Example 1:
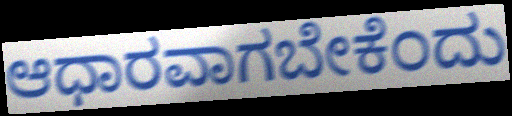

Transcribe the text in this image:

ಆಧಾರವಾಗಬೇಕೆಂದು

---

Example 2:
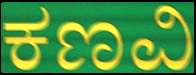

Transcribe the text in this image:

ಕಣವಿ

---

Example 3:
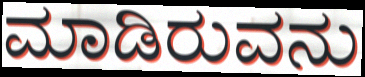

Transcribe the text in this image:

ಮಾಡಿರುವನು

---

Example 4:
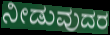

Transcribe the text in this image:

ನೀಡುವುದರ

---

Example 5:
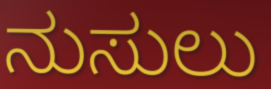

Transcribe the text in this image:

ನುಸುಲು